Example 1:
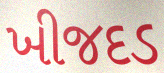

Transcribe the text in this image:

ખીજદડ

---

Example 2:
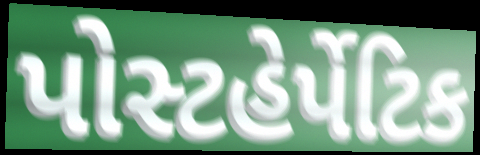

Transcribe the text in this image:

પોસ્ટહેર્પેટિક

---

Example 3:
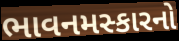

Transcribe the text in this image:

ભાવનમસ્કારનો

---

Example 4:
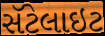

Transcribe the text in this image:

સૅટેલાઇટ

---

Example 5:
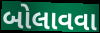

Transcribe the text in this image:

બોલાવવા